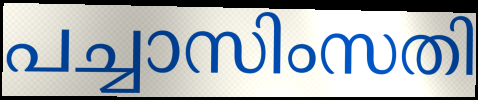
പച്ചാസിംസതി